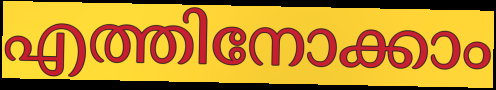
എത്തിനോക്കാം